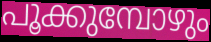
പൂക്കുമ്പോഴും